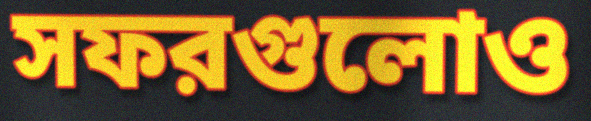
সফরগুলোও